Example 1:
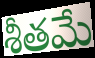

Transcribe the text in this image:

శీతమే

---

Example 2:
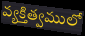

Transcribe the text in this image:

వ్యక్తిత్వములో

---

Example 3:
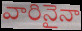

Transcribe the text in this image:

వారినైనా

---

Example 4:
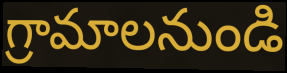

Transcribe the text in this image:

గ్రామాలనుండి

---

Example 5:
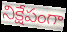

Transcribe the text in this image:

నిక్షేపంగా